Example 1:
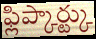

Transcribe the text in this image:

ఫ్లిప్కార్ట్కు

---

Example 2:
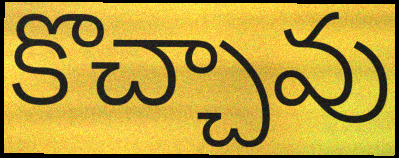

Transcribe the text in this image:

కొచ్చావు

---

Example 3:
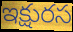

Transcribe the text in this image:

ఇక్షురస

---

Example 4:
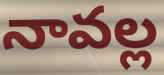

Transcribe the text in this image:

నావల్ల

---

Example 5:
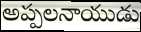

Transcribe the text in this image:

అప్పలనాయుడు